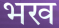
भख